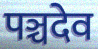
पञ्चदेव